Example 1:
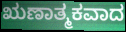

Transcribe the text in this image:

ಋಣಾತ್ಮಕವಾದ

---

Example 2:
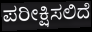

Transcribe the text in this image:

ಪರೀಕ್ಷಿಸಲಿದೆ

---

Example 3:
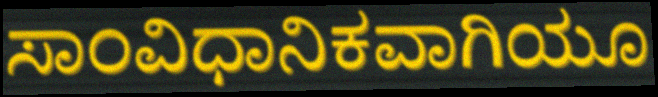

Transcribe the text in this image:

ಸಾಂವಿಧಾನಿಕವಾಗಿಯೂ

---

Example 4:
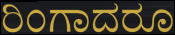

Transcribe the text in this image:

ರಿಂಗಾದರೂ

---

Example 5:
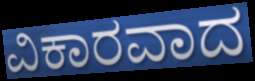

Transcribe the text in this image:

ವಿಕಾರವಾದ